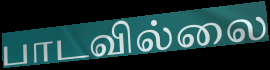
பாடவில்லை